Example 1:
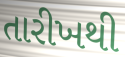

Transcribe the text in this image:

તારીખથી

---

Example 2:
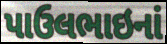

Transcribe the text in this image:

પાઉલભાઇનાં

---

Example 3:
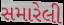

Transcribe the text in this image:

સમારેલી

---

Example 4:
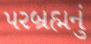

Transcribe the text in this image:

પરબ્રહ્મનું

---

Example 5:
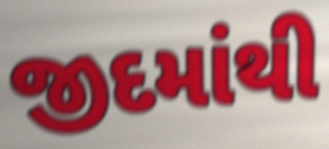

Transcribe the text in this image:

જીદમાંથી